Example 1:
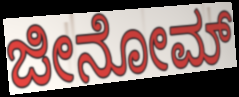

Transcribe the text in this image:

ಜೀನೋಮ್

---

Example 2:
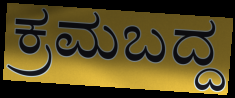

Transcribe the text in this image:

ಕ್ರಮಬದ್ದ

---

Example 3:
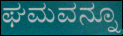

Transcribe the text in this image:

ಘಮವನ್ನೂ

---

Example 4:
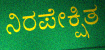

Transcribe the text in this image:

ನಿರಪೇಕ್ಷಿತ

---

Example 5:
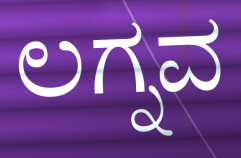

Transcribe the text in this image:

ಲಗ್ನವ